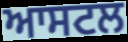
ਆਸਟਲ